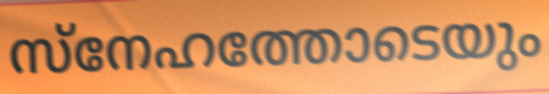
സ്നേഹത്തോടെയും